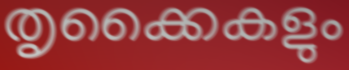
തൃക്കൈകളും